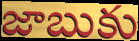
జాబుకు